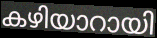
കഴിയാറായി